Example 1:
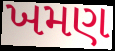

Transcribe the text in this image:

ખમણ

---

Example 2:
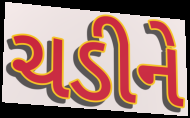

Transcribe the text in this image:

ચડીને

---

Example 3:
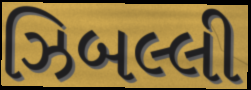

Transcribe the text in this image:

ઝિબલ્લી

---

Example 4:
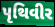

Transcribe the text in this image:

પૃથિવીર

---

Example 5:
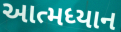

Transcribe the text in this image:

આત્મધ્યાન